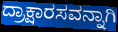
ದ್ರಾಕ್ಷಾರಸವನ್ನಾಗಿ